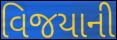
વિજયાની